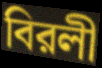
বিরলী